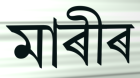
মাৰীৰ